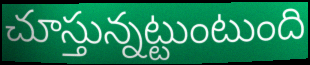
చూస్తున్నట్టుంటుంది